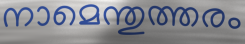
നാമെന്തുത്തരം